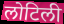
लोटिली